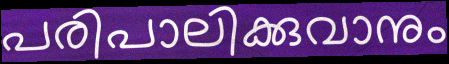
പരിപാലിക്കുവാനും